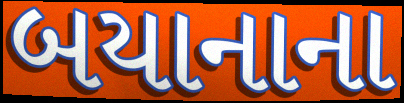
બયાનાના